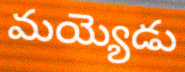
మయ్యెడు